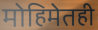
मोहिमेतही